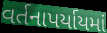
વર્તનાપર્યાયમાં